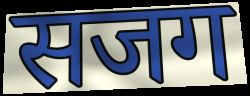
सजग